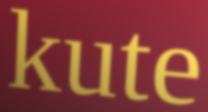
kute